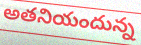
అతనియందున్న